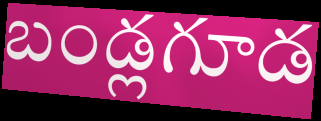
బండ్లగూడ